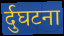
र्दुघटना